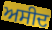
ਅਸੀਦ